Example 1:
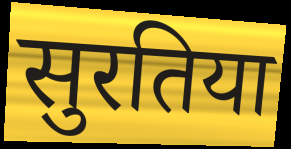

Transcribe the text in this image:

सुरतिया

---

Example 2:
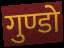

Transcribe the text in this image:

गुण्डो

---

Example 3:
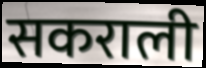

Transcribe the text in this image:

सकराली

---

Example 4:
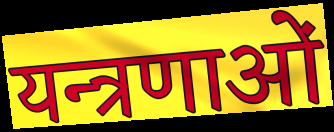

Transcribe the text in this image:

यन्त्रणाओं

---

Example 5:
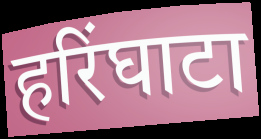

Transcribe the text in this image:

हरिंघाटा